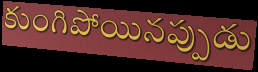
కుంగిపోయినప్పుడు